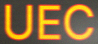
UEC